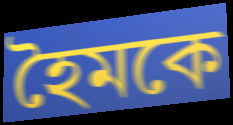
হৈমকে